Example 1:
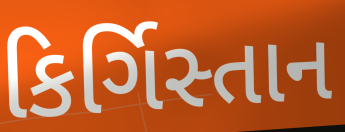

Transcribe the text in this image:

કિર્ગિસ્તાન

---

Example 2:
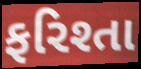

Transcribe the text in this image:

ફરિશ્તા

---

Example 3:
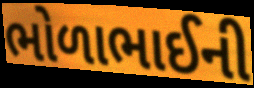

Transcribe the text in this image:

ભોળાભાઈની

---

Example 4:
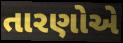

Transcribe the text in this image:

તારણોએ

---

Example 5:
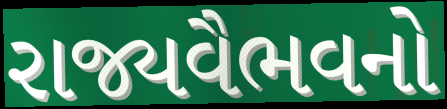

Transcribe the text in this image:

રાજ્યવૈભવનો